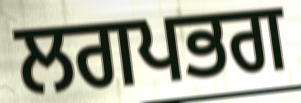
ਲਗਪਭਗ